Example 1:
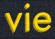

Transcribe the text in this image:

vie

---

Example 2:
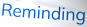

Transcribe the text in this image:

Reminding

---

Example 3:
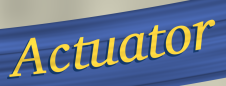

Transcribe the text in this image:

Actuator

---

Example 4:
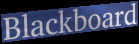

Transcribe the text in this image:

Blackboard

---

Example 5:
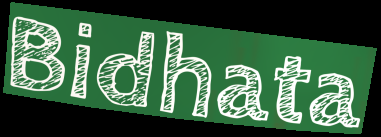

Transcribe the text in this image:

Bidhata